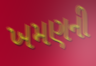
ખમણની